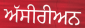
ਅੱਸੀਰੀਅਨ